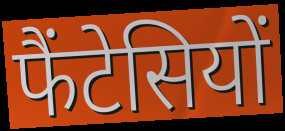
फैंटेसियों